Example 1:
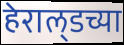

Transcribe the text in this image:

हेराल्डच्या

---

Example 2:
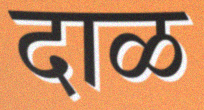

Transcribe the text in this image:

दाळ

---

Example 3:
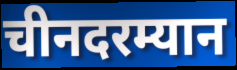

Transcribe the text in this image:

चीनदरम्यान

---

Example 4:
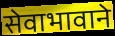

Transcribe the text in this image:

सेवाभावाने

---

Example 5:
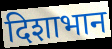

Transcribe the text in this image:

दिशाभान